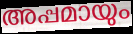
അപ്പമായും